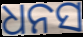
ଧନସ